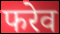
फरेव